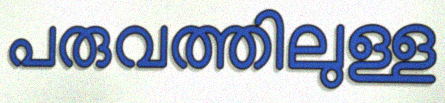
പരുവത്തിലുള്ള